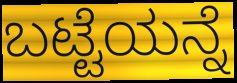
ಬಟ್ಟೆಯನ್ನೆ